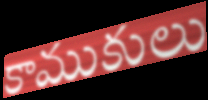
కాముకులు